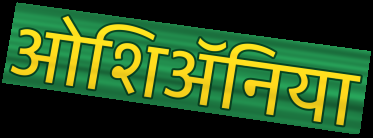
ओशिॲनिया